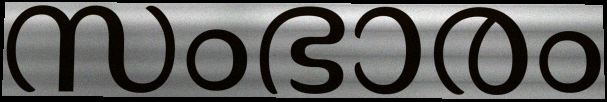
സംഭാരം